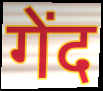
गेंद